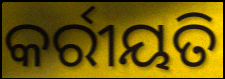
କର୍ରୀୟତି